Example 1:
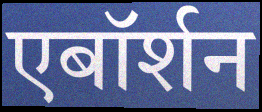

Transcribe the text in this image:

एबॉर्शन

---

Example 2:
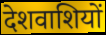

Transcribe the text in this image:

देशवाशियों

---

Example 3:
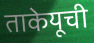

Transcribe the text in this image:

ताकेयूची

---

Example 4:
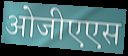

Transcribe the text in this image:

ओजीएएस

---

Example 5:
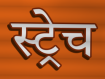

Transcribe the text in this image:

स्ट्रेच